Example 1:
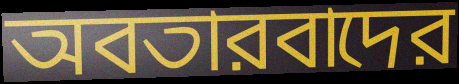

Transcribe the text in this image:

অবতারবাদের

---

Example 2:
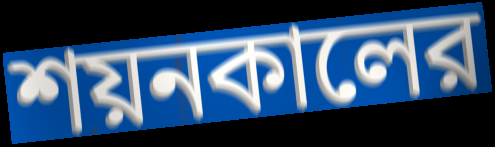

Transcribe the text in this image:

শয়নকালের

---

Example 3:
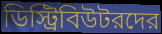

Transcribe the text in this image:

ডিস্ট্রিবিউটরদের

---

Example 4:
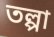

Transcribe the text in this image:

তল্পা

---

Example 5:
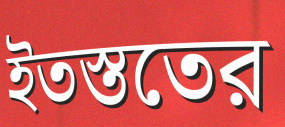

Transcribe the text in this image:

ইতস্ততের